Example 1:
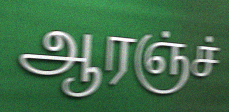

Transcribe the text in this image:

ஆரஞ்ச்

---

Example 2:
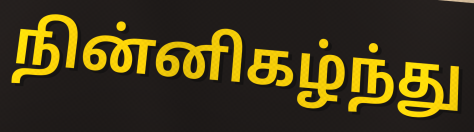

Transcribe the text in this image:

நின்னிகழ்ந்து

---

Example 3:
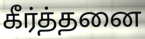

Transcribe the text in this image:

கீர்த்தனை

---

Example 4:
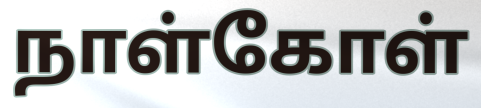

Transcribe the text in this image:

நாள்கோள்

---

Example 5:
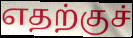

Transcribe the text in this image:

எதற்குச்